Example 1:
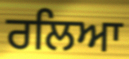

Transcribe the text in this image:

ਰਲਿਆ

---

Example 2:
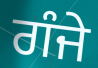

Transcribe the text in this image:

ਗੰਜੇ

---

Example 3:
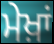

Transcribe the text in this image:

ਮੇਖ਼ਾਂ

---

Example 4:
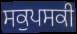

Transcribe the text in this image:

ਸਕੁਪਸਕੀ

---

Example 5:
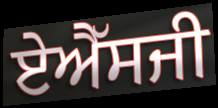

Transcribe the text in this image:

ਏਐੱਸਜੀ